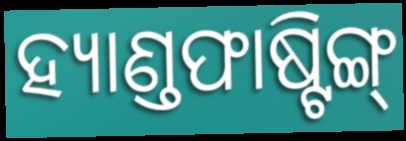
ହ୍ୟାଣ୍ଡଫାଷ୍ଟିଙ୍ଗ୍